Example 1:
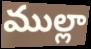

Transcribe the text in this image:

ముల్లా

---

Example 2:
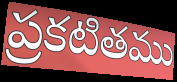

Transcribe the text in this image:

ప్రకటితము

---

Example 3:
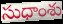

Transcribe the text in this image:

సుధాంశు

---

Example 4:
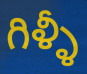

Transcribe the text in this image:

గిళ్ళీ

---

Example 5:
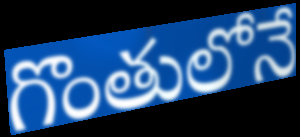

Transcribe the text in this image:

గొంతులోనే